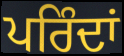
ਪਰਿੰਦਾਂ